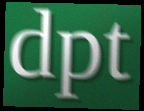
dpt